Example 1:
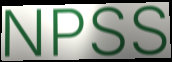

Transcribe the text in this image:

NPSS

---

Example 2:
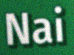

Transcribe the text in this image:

Nai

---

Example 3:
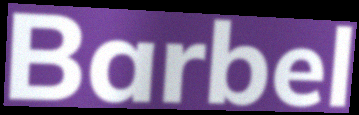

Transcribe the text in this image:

Barbel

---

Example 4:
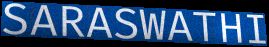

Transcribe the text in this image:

SARASWATHI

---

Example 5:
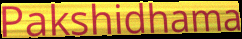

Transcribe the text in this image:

Pakshidhama